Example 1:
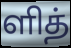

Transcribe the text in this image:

ளித்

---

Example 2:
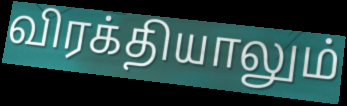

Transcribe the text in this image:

விரக்தியாலும்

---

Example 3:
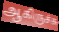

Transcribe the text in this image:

ஆகிருச்சு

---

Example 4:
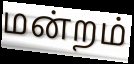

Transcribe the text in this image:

மன்றம்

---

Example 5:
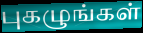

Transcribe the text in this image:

புகழுங்கள்